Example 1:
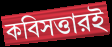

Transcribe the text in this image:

কবিসত্তারই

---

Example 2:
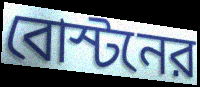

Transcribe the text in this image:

বোস্টনের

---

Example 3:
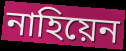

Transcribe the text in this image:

নাহিয়েন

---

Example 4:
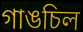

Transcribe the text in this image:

গাঙচিল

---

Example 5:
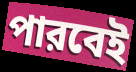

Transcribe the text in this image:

পারবেই